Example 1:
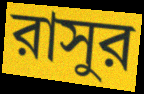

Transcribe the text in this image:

রাসুর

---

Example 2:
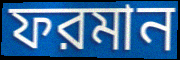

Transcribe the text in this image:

ফরমান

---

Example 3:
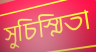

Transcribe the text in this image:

সুচিস্মিতা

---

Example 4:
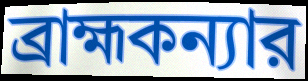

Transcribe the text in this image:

ব্রাহ্মকন্যার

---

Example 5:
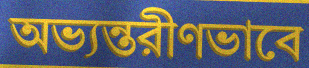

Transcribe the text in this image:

অভ্যন্তরীণভাবে